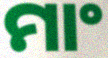
ମାଂ